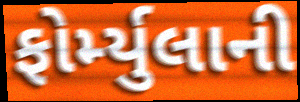
ફોર્મ્યુલાની